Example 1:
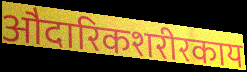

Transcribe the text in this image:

औदारिकशरीरकाय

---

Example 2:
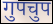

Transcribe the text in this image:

गुपचुप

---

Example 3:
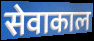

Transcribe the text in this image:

सेवाकाल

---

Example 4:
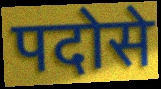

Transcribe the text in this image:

पदोसे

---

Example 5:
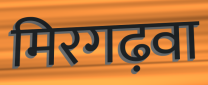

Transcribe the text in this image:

मिरगढ़वा